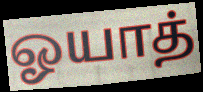
ஓயாத்